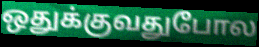
ஒதுக்குவதுபோல